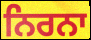
ਨਿਰਨਾ